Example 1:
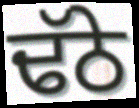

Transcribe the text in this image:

ਢੱਠੇ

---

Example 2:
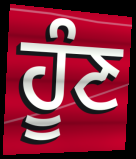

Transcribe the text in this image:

ਹੂੰਣ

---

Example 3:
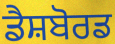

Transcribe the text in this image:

ਡੈਸ਼ਬੋਰਡ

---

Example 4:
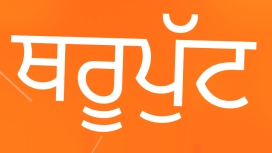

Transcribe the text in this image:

ਥਰੂਪੁੱਟ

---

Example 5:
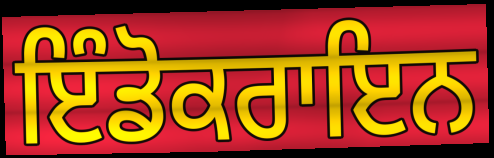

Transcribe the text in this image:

ਇੰਡੋਕਰਾਇਨ